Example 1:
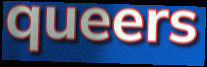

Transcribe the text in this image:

queers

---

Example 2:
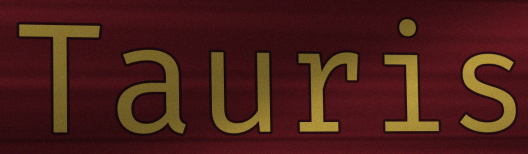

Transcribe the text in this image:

Tauris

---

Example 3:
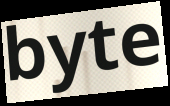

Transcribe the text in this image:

byte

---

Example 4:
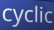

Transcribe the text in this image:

cyclic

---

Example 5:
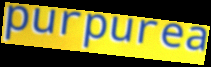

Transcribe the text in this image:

purpurea